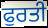
ਫੁਰਤੀ